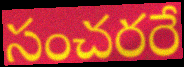
సంచరరే